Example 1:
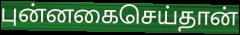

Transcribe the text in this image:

புன்னகைசெய்தான்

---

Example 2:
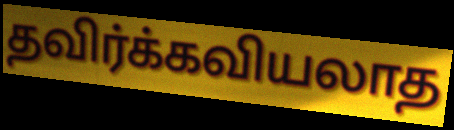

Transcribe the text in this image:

தவிர்க்கவியலாத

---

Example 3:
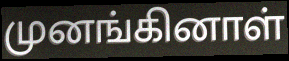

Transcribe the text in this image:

முனங்கினாள்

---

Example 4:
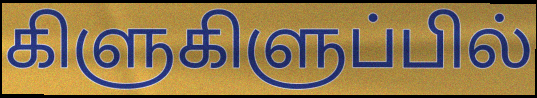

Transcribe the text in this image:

கிளுகிளுப்பில்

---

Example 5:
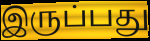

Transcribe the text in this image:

இருப்பது